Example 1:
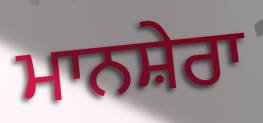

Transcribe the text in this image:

ਮਾਨਸ਼ੇਰਾ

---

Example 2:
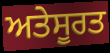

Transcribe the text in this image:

ਅਤੇਸੂਰਤ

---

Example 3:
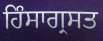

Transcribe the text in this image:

ਹਿੰਸਾਗ੍ਰਸਤ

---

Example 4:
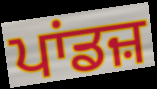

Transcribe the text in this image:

ਪਾਂਡਜ਼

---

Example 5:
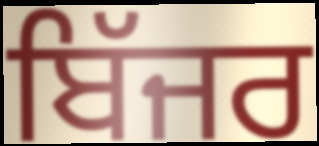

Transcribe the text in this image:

ਬਿੱਜਰ